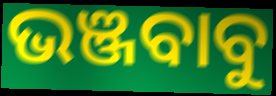
ଭଞ୍ଜବାବୁ